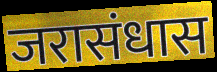
जरासंधास